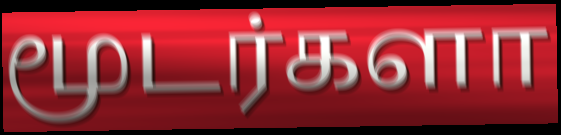
மூடர்களா